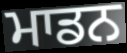
ਮਾਡਨ